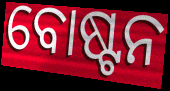
ବୋଷ୍ଟନ